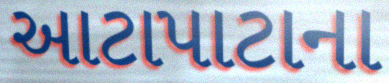
આટાપાટાના